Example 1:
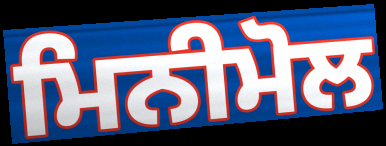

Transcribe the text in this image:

ਮਿਨੀਮੋਲ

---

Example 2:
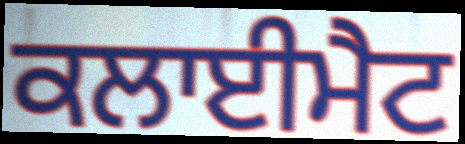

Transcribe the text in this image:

ਕਲਾਈਮੈਟ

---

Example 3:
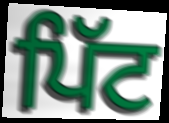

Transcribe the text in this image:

ਪਿੱਟ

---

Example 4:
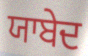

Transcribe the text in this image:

ਯਾਬੇਦ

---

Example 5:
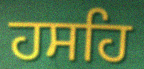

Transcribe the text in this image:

ਹਸਹਿ